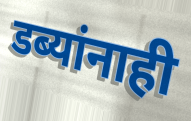
डब्यांनाही